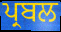
ਪ੍ਰਬਲ